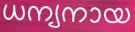
ധന്യനായ